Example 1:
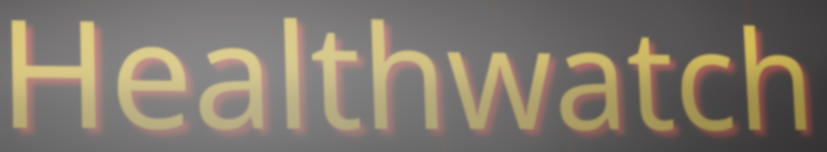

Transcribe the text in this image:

Healthwatch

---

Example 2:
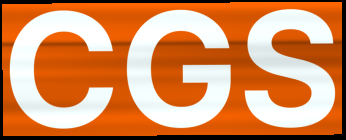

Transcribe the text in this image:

CGS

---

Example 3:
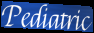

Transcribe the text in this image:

Pediatric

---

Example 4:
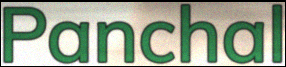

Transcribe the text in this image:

Panchal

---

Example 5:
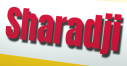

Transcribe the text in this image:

Sharadji